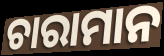
ଚାରାମାନ